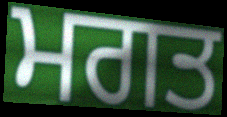
ਮਗਤ